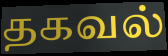
தகவல்